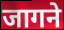
जागने